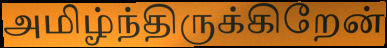
அமிழ்ந்திருக்கிறேன்